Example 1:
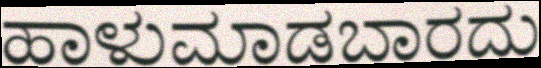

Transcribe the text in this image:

ಹಾಳುಮಾಡಬಾರದು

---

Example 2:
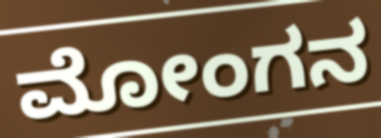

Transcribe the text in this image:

ಮೋಂಗನ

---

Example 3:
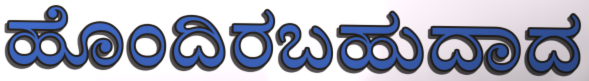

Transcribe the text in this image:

ಹೊಂದಿರಬಹುದಾದ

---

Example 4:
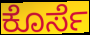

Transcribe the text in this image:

ಕೊರ್ಸೆ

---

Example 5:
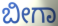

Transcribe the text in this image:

ಬೀಗಾ